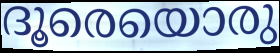
ദൂരെയൊരു